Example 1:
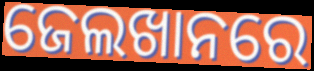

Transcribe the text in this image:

ଜେଲଖାନରେ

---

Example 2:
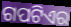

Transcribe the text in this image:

ଗପଟିଏର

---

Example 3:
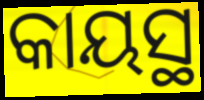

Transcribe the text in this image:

କାୟସ୍ଥ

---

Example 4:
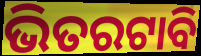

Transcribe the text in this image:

ଭିତରଟାବି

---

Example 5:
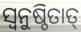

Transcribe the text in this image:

ସ୍ଵନୁଷ୍ଠିତାତ୍